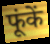
फूंकें